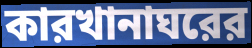
কারখানাঘরের